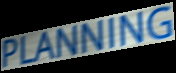
PLANNING